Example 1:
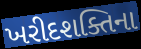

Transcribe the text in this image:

ખરીદશક્તિના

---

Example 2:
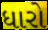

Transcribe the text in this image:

ધારો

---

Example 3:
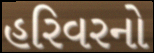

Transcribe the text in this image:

હરિવરનો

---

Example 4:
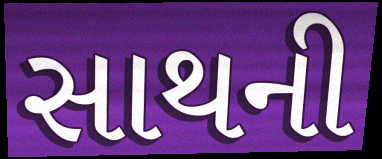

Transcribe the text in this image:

સાથની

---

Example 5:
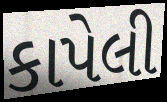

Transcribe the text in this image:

કાપેલી